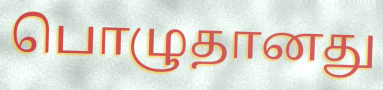
பொழுதானது